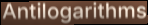
Antilogarithms